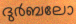
ദുർബലോ